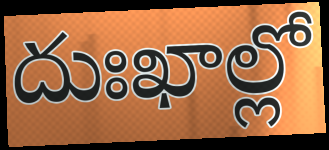
దుఃఖాల్లో